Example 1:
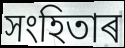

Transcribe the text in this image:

সংহিতাৰ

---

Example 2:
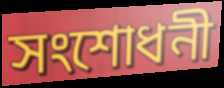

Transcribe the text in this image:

সংশোধনী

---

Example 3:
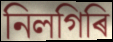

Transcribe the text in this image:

নিলগিৰি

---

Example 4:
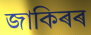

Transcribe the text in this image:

জাকিৰৰ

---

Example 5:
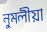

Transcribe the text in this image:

নুমলীয়া